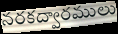
నరకద్వారములు